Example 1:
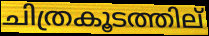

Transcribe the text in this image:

ചിത്രകൂടത്തില്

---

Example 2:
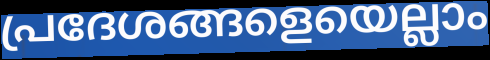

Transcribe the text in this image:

പ്രദേശങ്ങളെയെല്ലാം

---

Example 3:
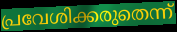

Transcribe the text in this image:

പ്രവേശിക്കരുതെന്ന്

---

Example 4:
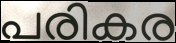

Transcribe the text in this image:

പരികര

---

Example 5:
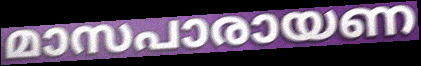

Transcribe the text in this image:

മാസപാരായണ